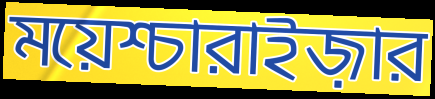
ময়েশ্চারাইজ়ার